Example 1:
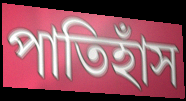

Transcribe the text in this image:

পাতিহাঁস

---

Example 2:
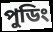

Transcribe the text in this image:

পুডিং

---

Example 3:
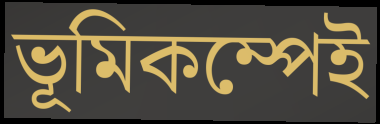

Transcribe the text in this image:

ভূমিকম্পেই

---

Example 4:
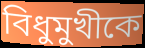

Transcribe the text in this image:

বিধুমুখীকে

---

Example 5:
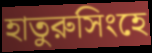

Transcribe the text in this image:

হাতুরুসিংহে